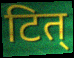
टित्